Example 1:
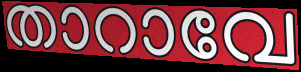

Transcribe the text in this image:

താറാവേ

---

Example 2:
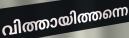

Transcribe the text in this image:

വിത്തായിത്തന്നെ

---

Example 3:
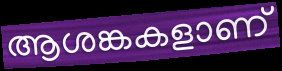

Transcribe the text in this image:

ആശങ്കകളാണ്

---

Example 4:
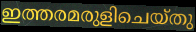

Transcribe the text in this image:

ഇത്തരമരുളിചെയ്തു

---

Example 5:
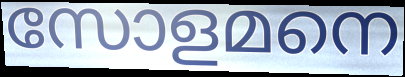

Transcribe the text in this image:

സോളമനെ